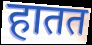
हातत